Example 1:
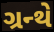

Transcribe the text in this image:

ગ્રન્થે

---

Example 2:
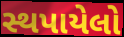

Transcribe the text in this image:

સ્થપાયેલો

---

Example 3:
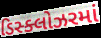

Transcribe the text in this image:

ડિસ્ક્લોઝરમાં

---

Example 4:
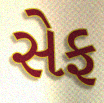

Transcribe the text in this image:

સેફ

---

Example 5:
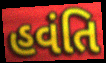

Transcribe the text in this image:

હવંતિ